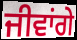
ਜੀਵਾਂਗੇ